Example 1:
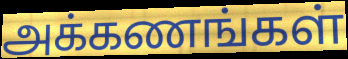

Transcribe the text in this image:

அக்கணங்கள்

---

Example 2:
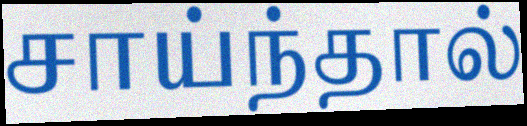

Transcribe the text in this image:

சாய்ந்தால்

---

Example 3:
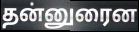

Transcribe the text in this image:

தன்னுரைன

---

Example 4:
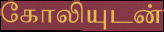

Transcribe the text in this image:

கோலியுடன்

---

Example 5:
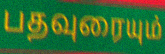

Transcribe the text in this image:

பதவுரையும்